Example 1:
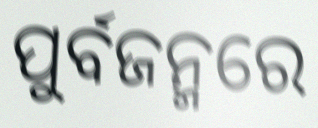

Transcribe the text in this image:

ପୁର୍ବଜନ୍ମରେ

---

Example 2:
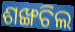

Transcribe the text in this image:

ଶଙ୍ଖଚିଲ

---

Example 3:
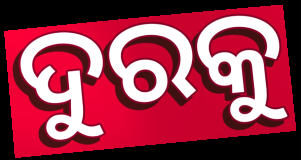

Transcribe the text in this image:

ଦୁରକୁ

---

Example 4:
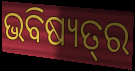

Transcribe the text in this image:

ଭବିଷ୍ୟତ୍‌ର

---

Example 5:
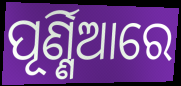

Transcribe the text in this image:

ପୂର୍ଣ୍ଣିଆରେ